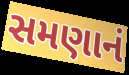
સમણાનં